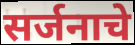
सर्जनाचे